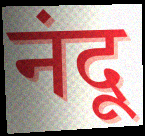
नंदू